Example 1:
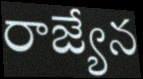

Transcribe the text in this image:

రాజ్యేన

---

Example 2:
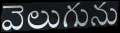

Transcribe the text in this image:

వెలుగును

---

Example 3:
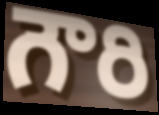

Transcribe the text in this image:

గౌరి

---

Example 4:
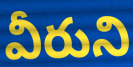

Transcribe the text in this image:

వీరుని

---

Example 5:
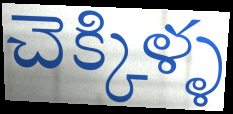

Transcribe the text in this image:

చెక్కిళ్ళ